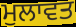
ਮੁਲਾਵਤ